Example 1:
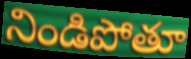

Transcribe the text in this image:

నిండిపోతూ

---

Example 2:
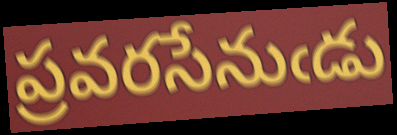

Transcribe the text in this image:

ప్రవరసేనుఁడు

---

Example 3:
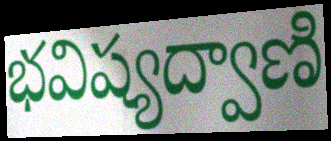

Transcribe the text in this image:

భవిష్యద్వాణి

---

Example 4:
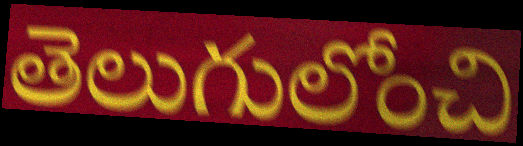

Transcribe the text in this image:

తెలుగులోంచి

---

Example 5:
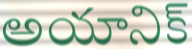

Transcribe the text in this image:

అయానిక్